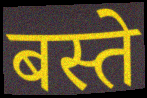
बस्ते